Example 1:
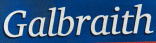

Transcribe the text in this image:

Galbraith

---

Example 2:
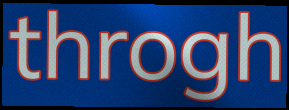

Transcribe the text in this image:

throgh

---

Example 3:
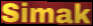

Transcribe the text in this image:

Simak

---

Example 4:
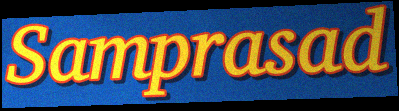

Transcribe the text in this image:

Samprasad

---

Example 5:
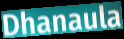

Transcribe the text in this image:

Dhanaula